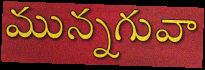
మున్నగువా